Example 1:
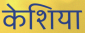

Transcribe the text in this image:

केशिया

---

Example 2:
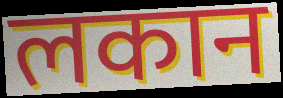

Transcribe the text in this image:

लकान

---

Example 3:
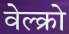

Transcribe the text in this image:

वेल्क्रो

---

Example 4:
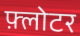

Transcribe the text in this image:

फ़्लोटर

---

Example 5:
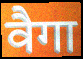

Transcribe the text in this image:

वैगा